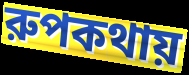
রুপকথায়